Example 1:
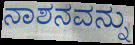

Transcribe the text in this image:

ನಾಶನವನ್ನು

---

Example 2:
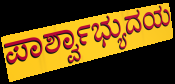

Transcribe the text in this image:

ಪಾರ್ಶ್ವಾಭ್ಯುದಯ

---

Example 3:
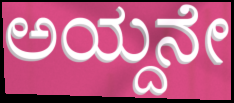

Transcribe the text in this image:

ಅಯ್ದನೇ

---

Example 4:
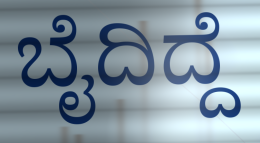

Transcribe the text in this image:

ಬೈದಿದ್ದೆ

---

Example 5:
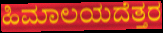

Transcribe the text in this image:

ಹಿಮಾಲಯದೆತ್ತರ